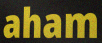
aham